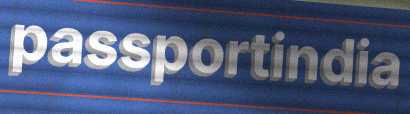
passportindia